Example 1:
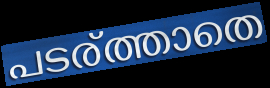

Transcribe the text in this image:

പടര്ത്താതെ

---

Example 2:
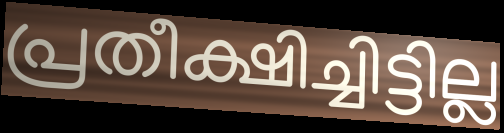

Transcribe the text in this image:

പ്രതീക്ഷിച്ചിട്ടില്ല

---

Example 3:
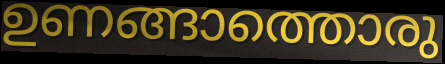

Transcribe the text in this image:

ഉണങ്ങാത്തൊരു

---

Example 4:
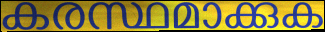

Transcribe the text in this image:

കരസ്ഥമാക്കുക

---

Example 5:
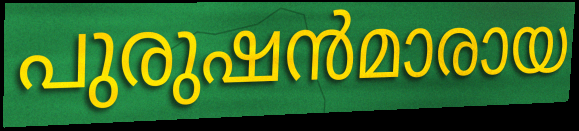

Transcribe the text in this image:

പുരുഷൻമാരായ